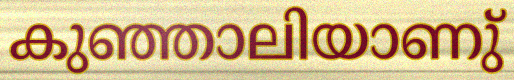
കുഞ്ഞാലിയാണു്